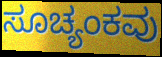
ಸೂಚ್ಯಂಕವು